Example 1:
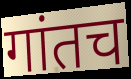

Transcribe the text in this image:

गांतच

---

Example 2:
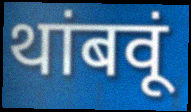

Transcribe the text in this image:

थांबवूं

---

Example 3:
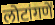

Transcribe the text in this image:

लोटांगणें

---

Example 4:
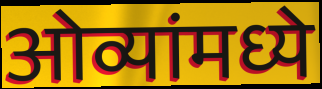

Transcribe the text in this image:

ओव्यांमध्ये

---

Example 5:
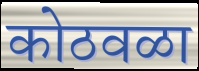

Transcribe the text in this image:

कोठवळा